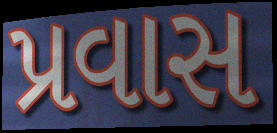
પ્રવાસ